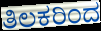
ತಿಲಕರಿಂದ